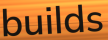
builds